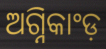
ଅଗ୍ନିକାଂଡ଼